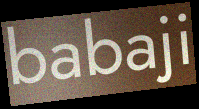
babaji